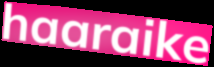
haaraike